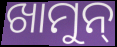
ଖାମୁନ୍